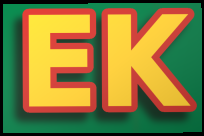
EK